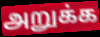
அறுக்க